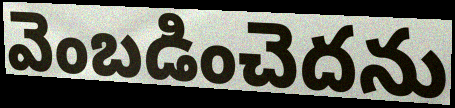
వెంబడించెదను